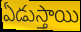
ఏడుస్తాయి